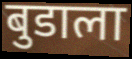
बुडाला